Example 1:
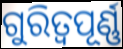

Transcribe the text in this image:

ଗୁରିତ୍ୱପୂର୍ଣ୍ଣ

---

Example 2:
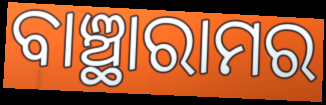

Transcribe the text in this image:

ବାଞ୍ଛାରାମର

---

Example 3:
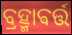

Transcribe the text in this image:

ବ୍ରହ୍ମାଵର୍ତ୍ତ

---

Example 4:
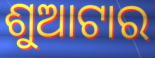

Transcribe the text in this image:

ଶୁଆଟାର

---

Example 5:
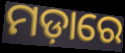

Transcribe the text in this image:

ମଡ଼ାରେ